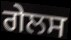
ਗੇਲਸ